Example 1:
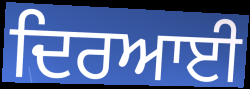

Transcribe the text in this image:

ਦਿਰਆਈ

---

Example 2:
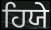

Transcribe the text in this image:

ਹਿਯੇ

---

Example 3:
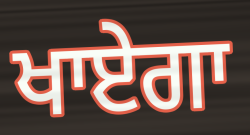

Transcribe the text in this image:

ਖਾਏਗਾ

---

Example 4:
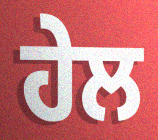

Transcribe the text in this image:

ਹੇਲ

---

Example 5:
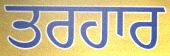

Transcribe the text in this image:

ਤਰਹਾਰ